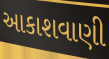
આકાશવાણી